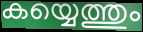
കയ്യെത്തും